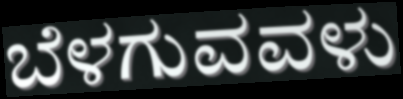
ಬೆಳಗುವವಳು